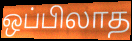
ஒப்பிலாத